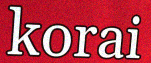
korai